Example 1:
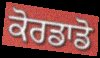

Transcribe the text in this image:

ਕੋਰਡਾਡੋ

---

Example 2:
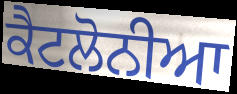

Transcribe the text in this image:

ਕੈਟਲੋਨੀਆ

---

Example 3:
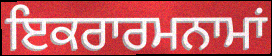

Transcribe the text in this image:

ਇਕਰਾਰਮਨਾਮਾਂ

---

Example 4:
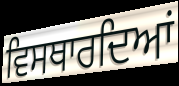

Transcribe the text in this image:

ਵਿਸਥਾਰਦਿਆਂ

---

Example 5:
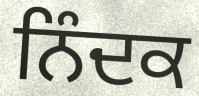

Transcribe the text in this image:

ਨਿੰਦਕ